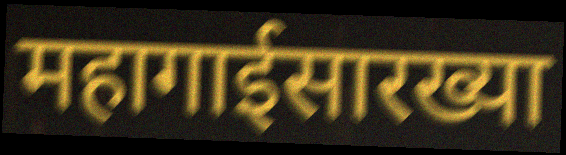
महागाईसारख्या